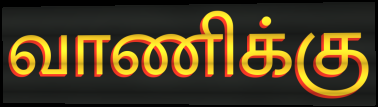
வாணிக்கு